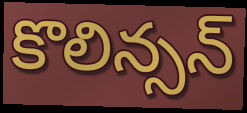
కొలిన్సన్